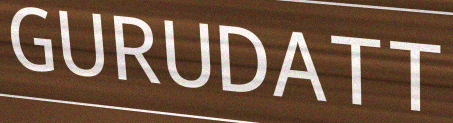
GURUDATT